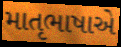
માતૃભાષાએ